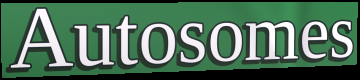
Autosomes